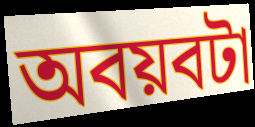
অবয়বটা